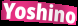
Yoshino